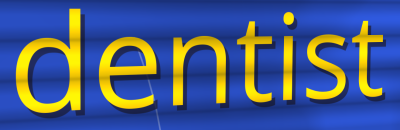
dentist